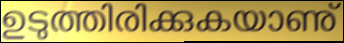
ഉടുത്തിരിക്കുകയാണു്